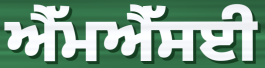
ਐੱਮਐੱਸਈ